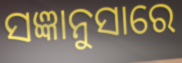
ସଜ୍ଞାନୁସାରେ